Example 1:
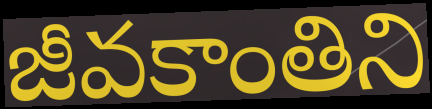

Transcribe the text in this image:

జీవకాంతిని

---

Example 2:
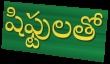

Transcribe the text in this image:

షిఫ్టులతో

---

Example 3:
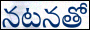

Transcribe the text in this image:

నటనతో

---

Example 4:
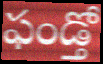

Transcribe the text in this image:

ఫండ్తో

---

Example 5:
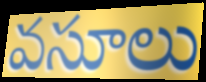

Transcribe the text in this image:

వసూలు